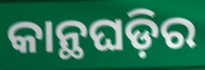
କାନ୍ଥଘଡ଼ିର